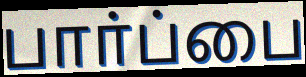
பார்ப்பை